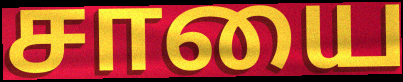
சாயை